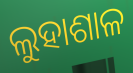
ଲୁହାଶାଳ